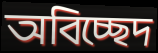
অবিচ্ছেদ